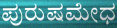
ಪುರುಷಮೇಧ